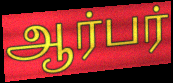
ஆர்பர்